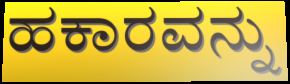
ಹಕಾರವನ್ನು